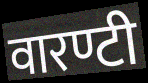
वारण्टी